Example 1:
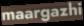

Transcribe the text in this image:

maargazhi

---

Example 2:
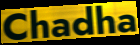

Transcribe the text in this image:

Chadha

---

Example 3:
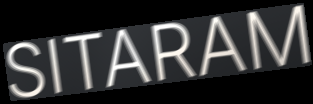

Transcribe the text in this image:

SITARAM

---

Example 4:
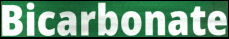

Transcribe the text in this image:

Bicarbonate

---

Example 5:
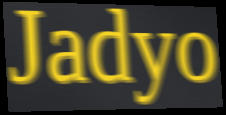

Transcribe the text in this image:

Jadyo